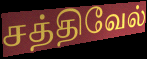
சத்திவேல்